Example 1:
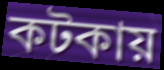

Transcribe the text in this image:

কটকায়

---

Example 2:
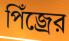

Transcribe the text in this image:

পিঁজ্রের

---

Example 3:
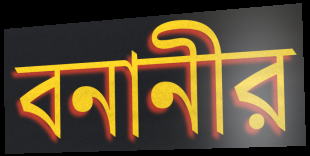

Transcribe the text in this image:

বনানীর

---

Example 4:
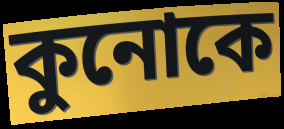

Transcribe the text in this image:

কুনোকে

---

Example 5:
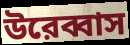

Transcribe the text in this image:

উরেব্বাস